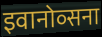
इवानोव्सना